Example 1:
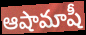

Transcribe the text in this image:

ఆషామాషీ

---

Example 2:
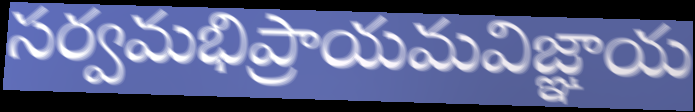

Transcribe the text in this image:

సర్వమభిప్రాయమవిజ్ఞాయ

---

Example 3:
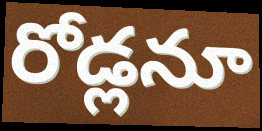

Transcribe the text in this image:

రోడ్లనూ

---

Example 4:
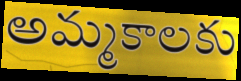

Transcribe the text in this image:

అమ్మకాలకు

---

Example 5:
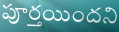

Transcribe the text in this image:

పూర్తయిందని